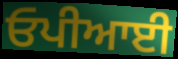
ਓਪੀਆਈ